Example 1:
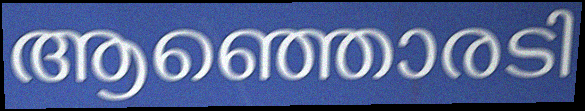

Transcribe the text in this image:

ആഞ്ഞൊരടി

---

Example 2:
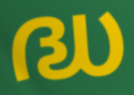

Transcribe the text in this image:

ദ്ധ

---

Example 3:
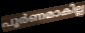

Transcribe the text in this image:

പൂർണമാകില്ല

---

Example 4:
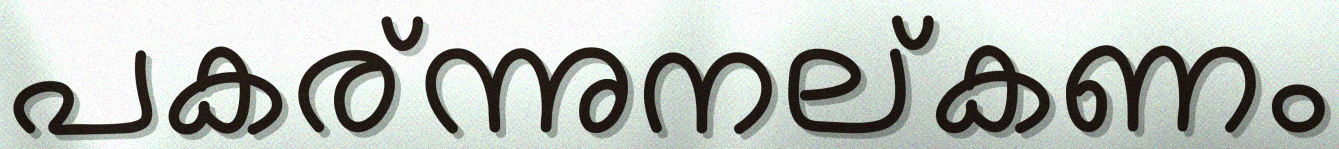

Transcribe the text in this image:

പകര്ന്നുനല്കണം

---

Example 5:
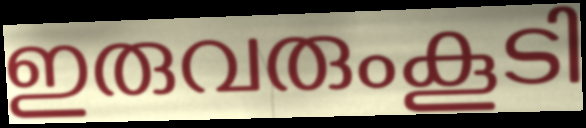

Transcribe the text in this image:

ഇരുവരുംകൂടി